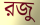
রজু